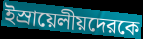
ইস্রায়েলীয়দেরকে